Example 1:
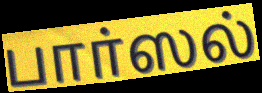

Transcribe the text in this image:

பார்ஸல்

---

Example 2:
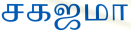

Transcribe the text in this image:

சகஜமா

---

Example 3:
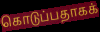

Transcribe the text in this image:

கொடுப்பதாகக்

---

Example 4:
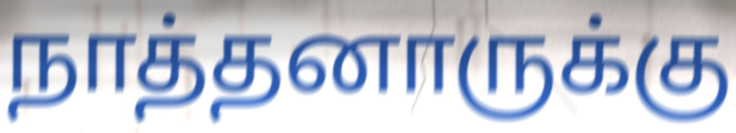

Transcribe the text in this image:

நாத்தனாருக்கு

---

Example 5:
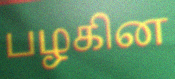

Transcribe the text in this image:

பழகின